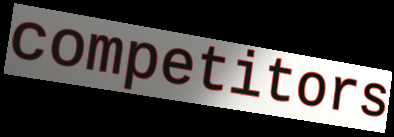
competitors